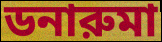
ডনারুমা